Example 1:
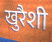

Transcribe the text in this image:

खुरैशी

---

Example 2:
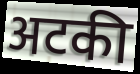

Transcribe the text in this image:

अटकी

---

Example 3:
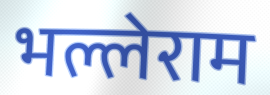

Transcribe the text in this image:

भल्लेराम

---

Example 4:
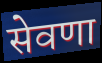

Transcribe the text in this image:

सेवणा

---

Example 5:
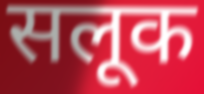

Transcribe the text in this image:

सलूक